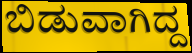
ಬಿಡುವಾಗಿದ್ದ